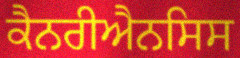
ਕੈਨਰੀਐਨਸਿਸ